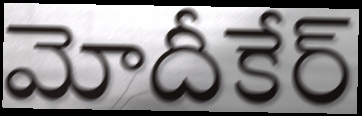
మోదీకేర్